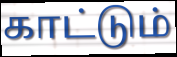
காட்டும்